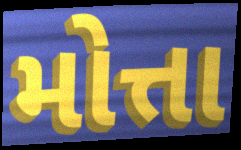
મોત્તા